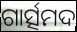
ଗାର୍ତ୍ସମଦ